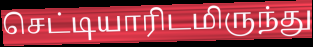
செட்டியாரிடமிருந்து